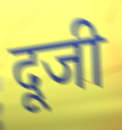
दूजी